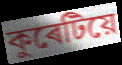
কুৰেটিয়ে